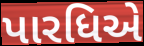
પારધિએ